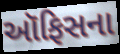
ઑફિસના